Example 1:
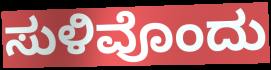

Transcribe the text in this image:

ಸುಳಿವೊಂದು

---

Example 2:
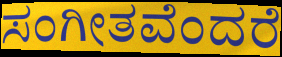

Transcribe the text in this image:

ಸಂಗೀತವೆಂದರೆ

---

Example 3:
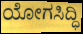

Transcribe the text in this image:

ಯೋಗಸಿದ್ಧಿ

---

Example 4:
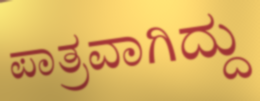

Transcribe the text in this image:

ಪಾತ್ರವಾಗಿದ್ದು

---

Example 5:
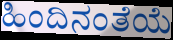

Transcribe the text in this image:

ಹಿಂದಿನಂತೆಯೆ